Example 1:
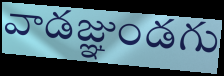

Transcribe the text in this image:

వాడజ్ఞుండగు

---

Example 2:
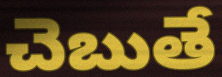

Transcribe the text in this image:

చెబుతే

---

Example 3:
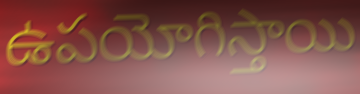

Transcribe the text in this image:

ఉపయోగిస్తాయి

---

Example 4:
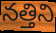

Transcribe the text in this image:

నత్తిని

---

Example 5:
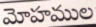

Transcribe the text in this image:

మోహముల